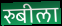
रुबीला